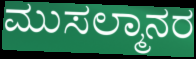
ಮುಸಲ್ಮಾನರ